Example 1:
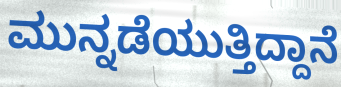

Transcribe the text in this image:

ಮುನ್ನಡೆಯುತ್ತಿದ್ದಾನೆ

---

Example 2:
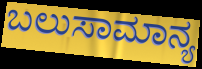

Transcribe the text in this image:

ಬಲುಸಾಮಾನ್ಯ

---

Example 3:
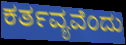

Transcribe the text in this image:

ಕರ್ತವ್ಯವೆಂದು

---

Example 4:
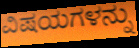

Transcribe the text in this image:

ವಿಷಯಗಳನ್ನು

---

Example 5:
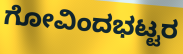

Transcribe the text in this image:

ಗೋವಿಂದಭಟ್ಟರ